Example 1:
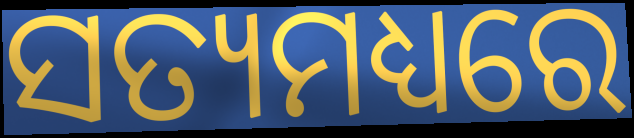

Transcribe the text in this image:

ସତ୍ୟମଧ୍ୟରେ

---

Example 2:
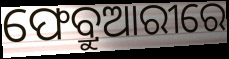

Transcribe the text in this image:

ଫେବ୍ରୁଆରୀରେ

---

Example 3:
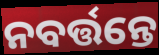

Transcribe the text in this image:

ନବର୍ତ୍ତନ୍ତେ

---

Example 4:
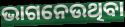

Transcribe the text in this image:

ଭାଗନେଉଥିବା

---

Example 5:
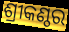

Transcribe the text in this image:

ଶ୍ରୀକଣ୍ଠର